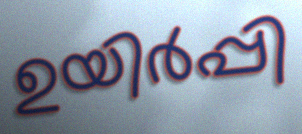
ഉയിർപ്പി